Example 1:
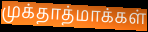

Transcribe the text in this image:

முக்தாத்மாக்கள்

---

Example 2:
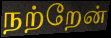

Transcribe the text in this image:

நற்றேன்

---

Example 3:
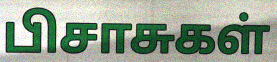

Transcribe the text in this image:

பிசாசுகள்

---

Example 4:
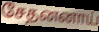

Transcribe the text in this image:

சேதனனாய்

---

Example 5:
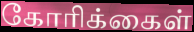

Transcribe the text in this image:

கோரிக்கைள்